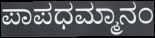
ಪಾಪಧಮ್ಮಾನಂ